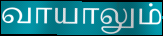
வாயாலும்